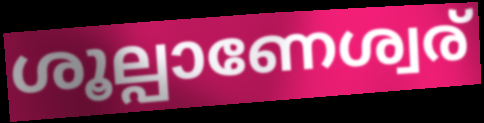
ശൂല്പാണേശ്വര്